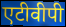
एटीवीपी